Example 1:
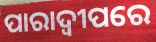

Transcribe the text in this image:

ପାରାଦ୍ବୀପରେ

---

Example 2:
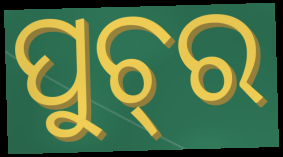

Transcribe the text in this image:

ପୁଚ୍‍ର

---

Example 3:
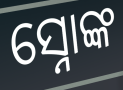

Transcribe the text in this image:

ସ୍ନୋଙ୍କ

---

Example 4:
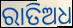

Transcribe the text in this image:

ରାତିଅଧ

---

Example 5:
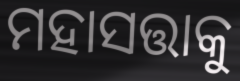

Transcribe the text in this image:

ମହାସତ୍ତାକୁ